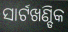
ସାର୍ଟଖଣ୍ଡିକ